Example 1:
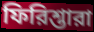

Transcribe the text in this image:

ফিরিশ্তারা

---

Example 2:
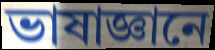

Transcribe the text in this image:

ভাষাজ্ঞানে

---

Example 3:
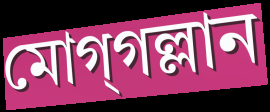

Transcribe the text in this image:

মোগ্‌গল্লান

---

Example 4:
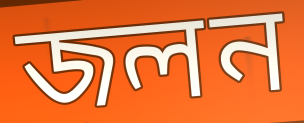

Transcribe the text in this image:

জলন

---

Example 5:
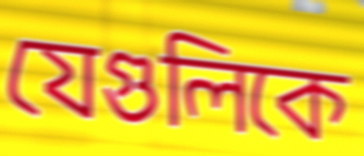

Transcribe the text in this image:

যেগুলিকে